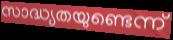
സാദ്ധ്യതയുണ്ടെന്ന്